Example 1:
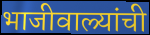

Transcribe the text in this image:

भाजीवाल्यांची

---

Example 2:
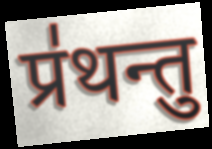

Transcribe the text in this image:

प्र॑थन्तु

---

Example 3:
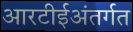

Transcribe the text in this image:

आरटीईअंतर्गत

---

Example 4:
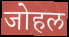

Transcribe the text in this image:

जोहल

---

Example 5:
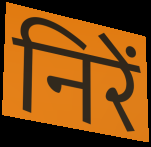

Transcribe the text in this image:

निरें